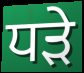
ਧੜੇ